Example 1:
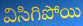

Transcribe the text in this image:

విసిగిపోయి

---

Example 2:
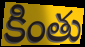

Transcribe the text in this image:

కింతు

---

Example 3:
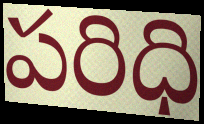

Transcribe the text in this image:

పరిధి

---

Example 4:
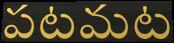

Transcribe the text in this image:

పటమట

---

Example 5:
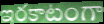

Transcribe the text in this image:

ఇరకాటంగా